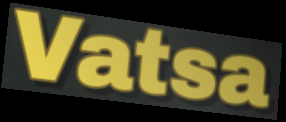
Vatsa